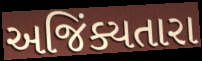
અજિંક્યતારા